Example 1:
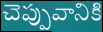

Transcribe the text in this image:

చెప్పువానికి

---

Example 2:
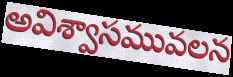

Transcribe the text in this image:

అవిశ్వాసమువలన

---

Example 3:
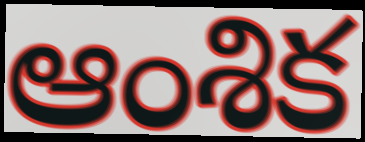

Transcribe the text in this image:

ఆంశిక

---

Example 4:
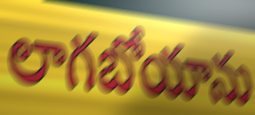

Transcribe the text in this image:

లాగబోయాను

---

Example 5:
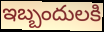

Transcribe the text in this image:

ఇబ్బందులకి